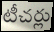
టీచర్లు